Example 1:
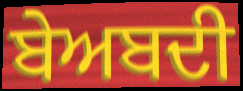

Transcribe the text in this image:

ਬੇਅਬਦੀ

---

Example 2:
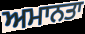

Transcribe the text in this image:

ਅਮਾਨਤਾ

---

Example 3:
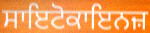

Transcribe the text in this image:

ਸਾਇਟੋਕਾਇਨਜ਼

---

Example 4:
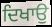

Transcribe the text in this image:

ਦਿਖਾਉ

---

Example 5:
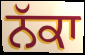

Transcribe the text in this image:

ਨੱਕਾ